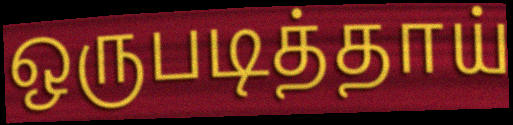
ஒருபடித்தாய்